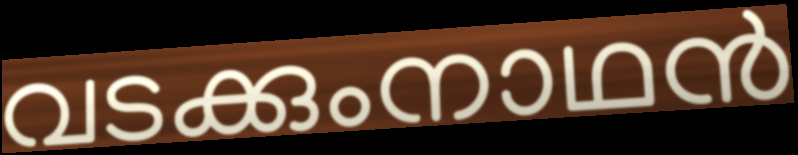
വടക്കുംനാഥൻ